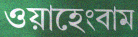
ওয়াহেংবাম